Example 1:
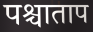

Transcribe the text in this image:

पश्चाताप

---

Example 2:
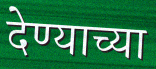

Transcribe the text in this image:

देण्याच्या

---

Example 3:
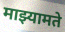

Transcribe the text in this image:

माझ्यामते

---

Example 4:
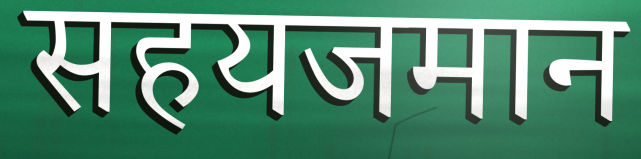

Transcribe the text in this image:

सहयजमान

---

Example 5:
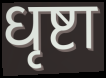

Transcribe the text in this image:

धृष्टा